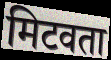
मिटवता